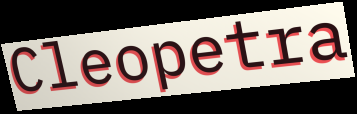
Cleopetra